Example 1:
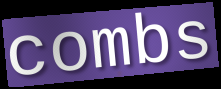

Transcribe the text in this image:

combs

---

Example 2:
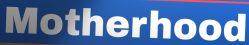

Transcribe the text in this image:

Motherhood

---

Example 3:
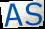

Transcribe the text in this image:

AS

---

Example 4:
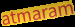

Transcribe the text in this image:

atmaram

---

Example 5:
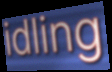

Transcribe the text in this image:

idling